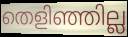
തെളിഞ്ഞില്ല